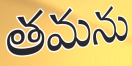
తమను